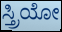
ಸ್ತ್ರಿಯೋ